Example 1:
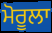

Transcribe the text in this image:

ਮੋਰੂਲਾ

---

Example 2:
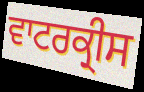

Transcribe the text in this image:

ਵਾਟਰਕ੍ਰੀਸ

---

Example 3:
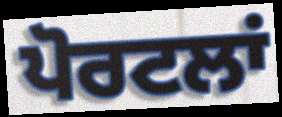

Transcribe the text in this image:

ਪੋਰਟਲਾਂ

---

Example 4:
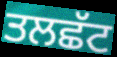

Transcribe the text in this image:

ਤਲਛੱਟ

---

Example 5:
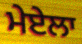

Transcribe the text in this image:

ਮੇਏਲਾ